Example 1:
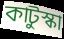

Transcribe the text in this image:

কাটুস্কা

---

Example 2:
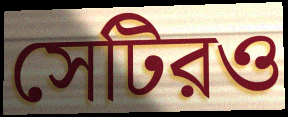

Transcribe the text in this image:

সেটিরও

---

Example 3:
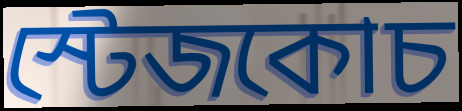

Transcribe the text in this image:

স্টেজকোচ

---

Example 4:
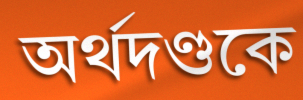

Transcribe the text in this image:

অর্থদণ্ডকে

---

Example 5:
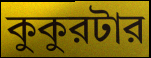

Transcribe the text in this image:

কুকুরটার